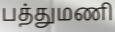
பத்துமணி